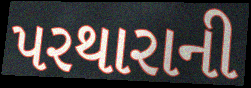
પરથારાની